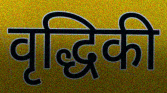
वृद्धिकी